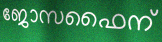
ജോസഫൈന്